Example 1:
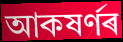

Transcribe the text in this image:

আকষৰ্ণৰ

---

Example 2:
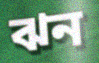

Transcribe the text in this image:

ঝন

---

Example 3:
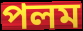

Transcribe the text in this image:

পলম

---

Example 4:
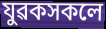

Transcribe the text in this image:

যুৱকসকলে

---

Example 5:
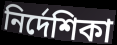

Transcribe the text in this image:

নিৰ্দেশিকা